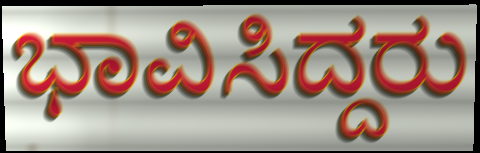
ಭಾವಿಸಿದ್ದರು